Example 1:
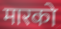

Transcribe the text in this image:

मारको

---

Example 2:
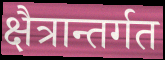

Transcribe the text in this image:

क्षैत्रान्तर्गत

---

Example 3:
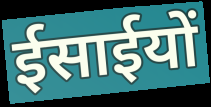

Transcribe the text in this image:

ईसाईयों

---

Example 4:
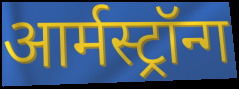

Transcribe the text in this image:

आर्मस्ट्रॉन्ग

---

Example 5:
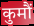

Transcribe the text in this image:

कुमौं